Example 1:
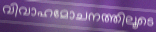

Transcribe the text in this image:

വിവാഹമോചനത്തിലൂടെ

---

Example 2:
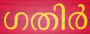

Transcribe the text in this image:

ഗതിർ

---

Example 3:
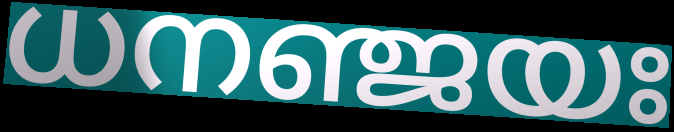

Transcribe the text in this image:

ധനഞ്ജയഃ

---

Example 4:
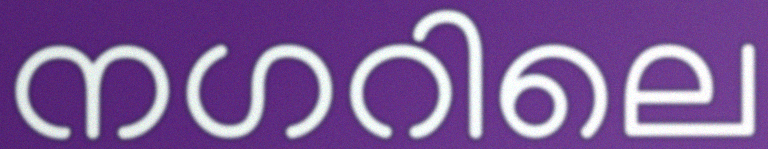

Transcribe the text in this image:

നഗറിലെ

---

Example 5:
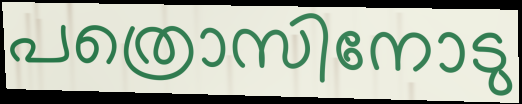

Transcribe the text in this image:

പത്രൊസിനോടു